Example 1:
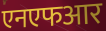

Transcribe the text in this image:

एनएफआर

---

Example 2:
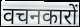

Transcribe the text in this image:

वचनकारों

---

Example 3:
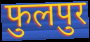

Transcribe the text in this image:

फुलपुर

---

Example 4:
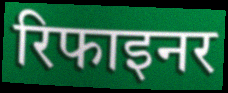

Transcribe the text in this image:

रिफाइनर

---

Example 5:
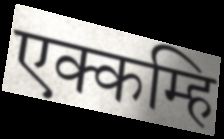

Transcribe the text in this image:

एक्कम्हि